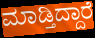
ಮಾಡ್ತಿದ್ದಾರೆ